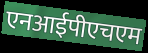
एनआईपीएचएम